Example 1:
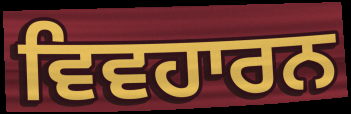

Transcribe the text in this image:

ਵਿਵਹਾਰਨ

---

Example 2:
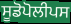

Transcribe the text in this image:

ਸੂਡੋਪੋਲੀਪਸ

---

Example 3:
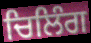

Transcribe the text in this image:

ਚਿਲਿੰਗ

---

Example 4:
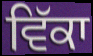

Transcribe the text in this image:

ਵਿੱਕਾ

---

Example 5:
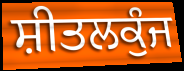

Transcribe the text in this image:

ਸ਼ੀਤਲਕੁੰਜ